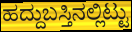
ಹದ್ದುಬಸ್ತಿನಲ್ಲಿಟ್ಟು